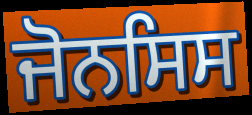
ਜੋਨਸਿਸ